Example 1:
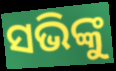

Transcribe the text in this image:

ସଭିଙ୍କୁ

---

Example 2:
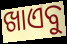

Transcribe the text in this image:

ଖାଏବୁ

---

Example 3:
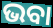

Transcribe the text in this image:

ଭବା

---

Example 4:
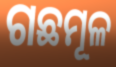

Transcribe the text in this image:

ଗଛମୂଳ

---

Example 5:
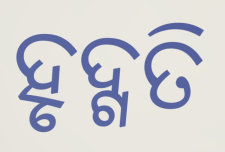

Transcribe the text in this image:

ହୃଦ୍ଗତି